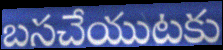
బసచేయుటకు